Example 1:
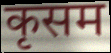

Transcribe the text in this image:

कृसम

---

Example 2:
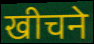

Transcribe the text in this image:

खीचने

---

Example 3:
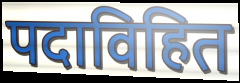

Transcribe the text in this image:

पदाविहित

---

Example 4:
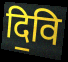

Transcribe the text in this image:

दि॒वि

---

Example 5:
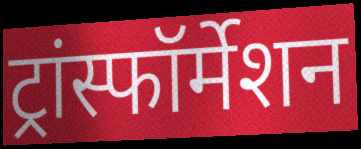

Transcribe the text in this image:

ट्रांस्फॉर्मेशन